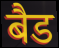
बैड